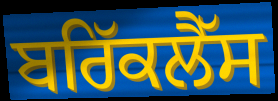
ਬਰਿੱਕਲੈੱਸ